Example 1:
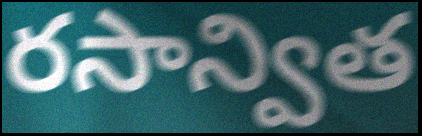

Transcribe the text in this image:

రసాన్విత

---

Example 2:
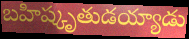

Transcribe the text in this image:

బహిష్కృతుడయ్యాడు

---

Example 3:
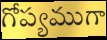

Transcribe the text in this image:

గోప్యముగా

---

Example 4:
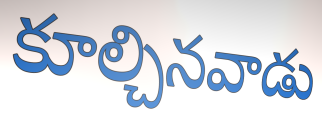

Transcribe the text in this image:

కూల్చినవాడు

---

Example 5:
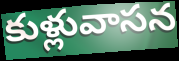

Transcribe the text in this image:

కుళ్లువాసన